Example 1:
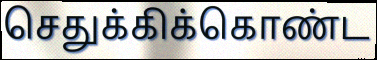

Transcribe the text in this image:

செதுக்கிக்கொண்ட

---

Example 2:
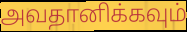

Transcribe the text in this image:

அவதானிக்கவும்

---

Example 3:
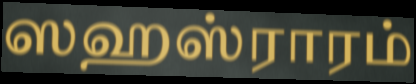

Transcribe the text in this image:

ஸஹஸ்ராரம்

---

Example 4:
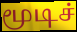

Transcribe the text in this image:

மூடிச்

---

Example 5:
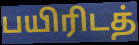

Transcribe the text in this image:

பயிரிடத்